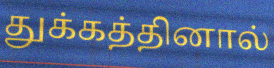
துக்கத்தினால்